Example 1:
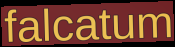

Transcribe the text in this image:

falcatum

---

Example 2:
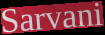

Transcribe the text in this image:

Sarvani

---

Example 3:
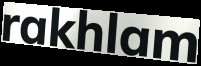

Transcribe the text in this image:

rakhlam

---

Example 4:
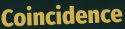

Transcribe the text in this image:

Coincidence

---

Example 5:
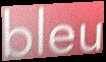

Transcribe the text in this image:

bleu